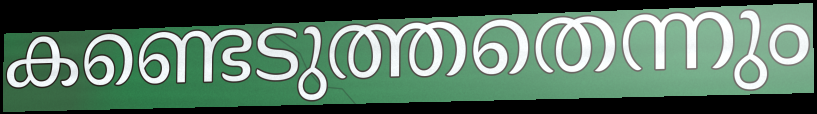
കണ്ടെടുത്തതെന്നും